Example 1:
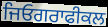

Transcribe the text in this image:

ਜਿਓਗਰਾਫੀਕਲ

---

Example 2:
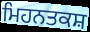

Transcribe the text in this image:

ਮਿਹਨਤਕਸ਼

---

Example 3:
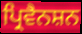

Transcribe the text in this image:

ਪ੍ਰਿਵੈਨਸ਼ਨ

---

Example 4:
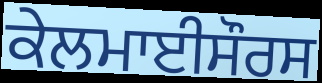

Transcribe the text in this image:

ਕੇਲਮਾਈਸੌਰਸ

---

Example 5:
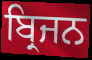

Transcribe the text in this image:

ਬ੍ਰਿਜਨ